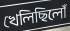
খেলিছিলোঁ